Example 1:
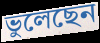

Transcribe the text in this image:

ভুলেছেন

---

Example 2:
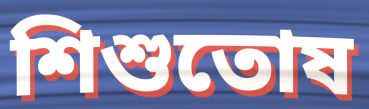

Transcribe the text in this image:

শিশুতোষ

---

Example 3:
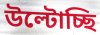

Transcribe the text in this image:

উল্টোচ্ছি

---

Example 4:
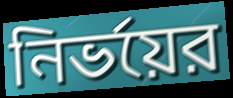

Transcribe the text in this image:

নির্ভয়ের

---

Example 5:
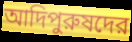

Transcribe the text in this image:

আদিপুরুষদের